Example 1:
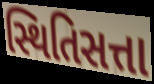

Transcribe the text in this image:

સ્થિતિસત્તા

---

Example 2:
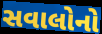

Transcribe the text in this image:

સવાલોનો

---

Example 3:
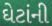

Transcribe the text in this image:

ઘેટાંની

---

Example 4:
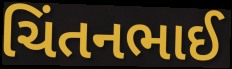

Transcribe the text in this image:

ચિંતનભાઈ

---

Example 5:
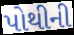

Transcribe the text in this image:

પોથીની